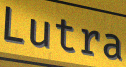
Lutra